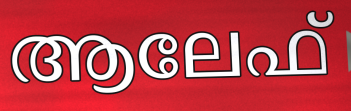
ആലേഫ്